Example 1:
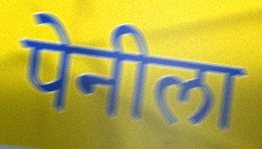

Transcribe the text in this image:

पेनीला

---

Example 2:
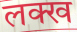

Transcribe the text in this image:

लक्ख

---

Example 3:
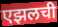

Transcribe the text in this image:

एझलची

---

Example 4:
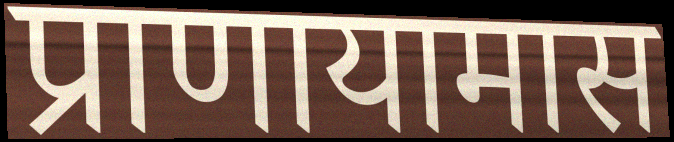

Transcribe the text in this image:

प्राणायामास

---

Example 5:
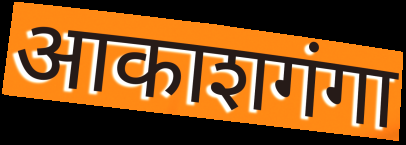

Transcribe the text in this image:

आकाशगंगा